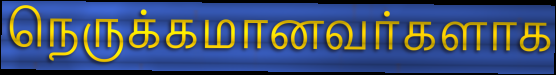
நெருக்கமானவர்களாக